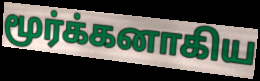
மூர்க்கனாகிய